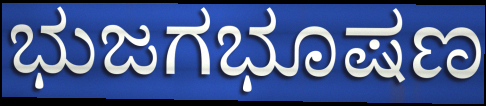
ಭುಜಗಭೂಷಣ